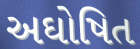
અઘોષિત